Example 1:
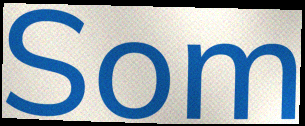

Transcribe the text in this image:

Som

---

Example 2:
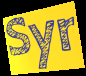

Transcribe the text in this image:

Syr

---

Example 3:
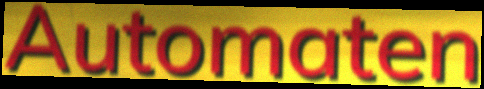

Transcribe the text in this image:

Automaten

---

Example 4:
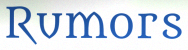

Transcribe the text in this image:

Rumors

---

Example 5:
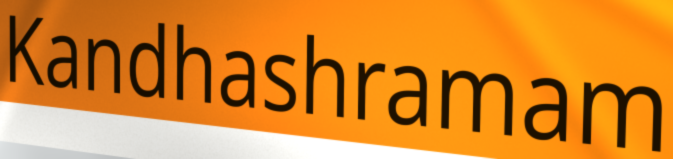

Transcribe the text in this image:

Kandhashramam